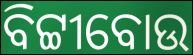
ବିଟ୍ଟୀବୋଉ